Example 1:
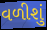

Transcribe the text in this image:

વળીશું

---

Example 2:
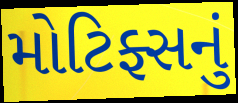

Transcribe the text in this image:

મોટિફ્સનું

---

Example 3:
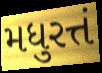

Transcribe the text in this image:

મધુરત્તં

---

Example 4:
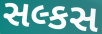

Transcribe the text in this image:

સલ્કસ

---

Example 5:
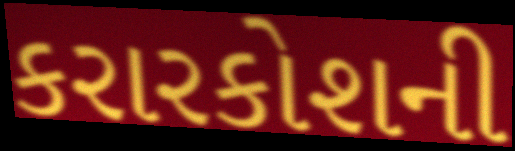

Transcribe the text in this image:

કરારકોશની